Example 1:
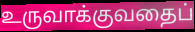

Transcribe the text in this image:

உருவாக்குவதைப்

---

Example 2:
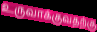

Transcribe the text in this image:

உருவாக்குவதற்கு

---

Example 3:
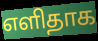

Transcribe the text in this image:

எளிதாக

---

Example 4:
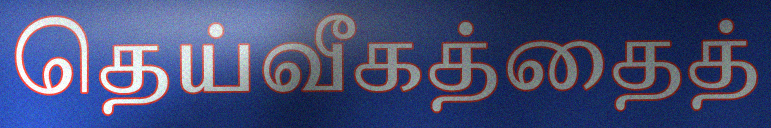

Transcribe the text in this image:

தெய்வீகத்தைத்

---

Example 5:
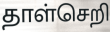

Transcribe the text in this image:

தாள்செறி